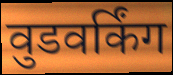
वुडवर्किंग